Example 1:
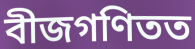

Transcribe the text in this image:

বীজগণিতত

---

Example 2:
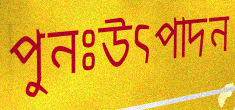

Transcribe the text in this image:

পুনঃউৎপাদন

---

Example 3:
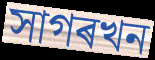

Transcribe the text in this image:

সাগৰখন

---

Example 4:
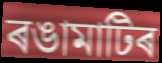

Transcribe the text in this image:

ৰঙামাটিৰ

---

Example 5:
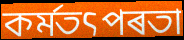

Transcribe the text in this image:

কৰ্মতৎপৰতা